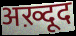
अख़्दूद